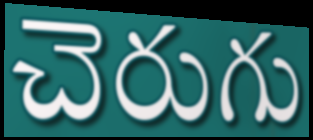
చెరుగు